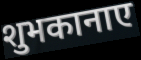
शुभकानाए